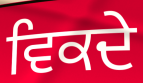
ਵਿਕਦੇ